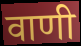
वाणी